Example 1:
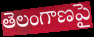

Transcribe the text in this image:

తెలంగాణపై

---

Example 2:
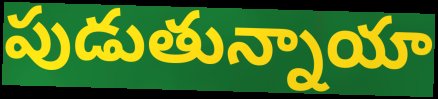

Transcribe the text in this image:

పుడుతున్నాయా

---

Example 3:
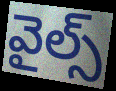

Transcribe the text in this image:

వైల్స్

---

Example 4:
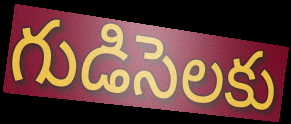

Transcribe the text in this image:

గుడిసెలకు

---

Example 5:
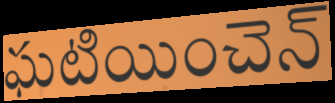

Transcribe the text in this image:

ఘటియించెన్